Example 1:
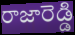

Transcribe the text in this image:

రాజారెడ్డి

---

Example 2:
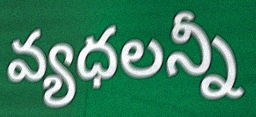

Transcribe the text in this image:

వ్యధలన్నీ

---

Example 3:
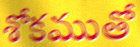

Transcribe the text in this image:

శోకముతో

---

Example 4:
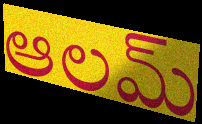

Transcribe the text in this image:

ఆలమ్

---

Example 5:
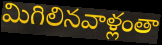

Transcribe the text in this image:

మిగిలినవాళ్లంతా